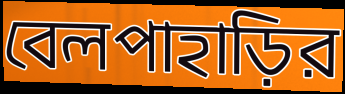
বেলপাহাড়ির